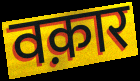
वक़ार